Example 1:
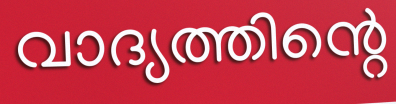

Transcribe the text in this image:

വാദ്യത്തിന്റെ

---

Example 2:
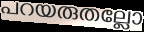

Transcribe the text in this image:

പറയരുതല്ലോ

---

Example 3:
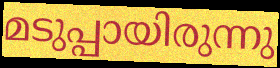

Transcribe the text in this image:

മടുപ്പായിരുന്നു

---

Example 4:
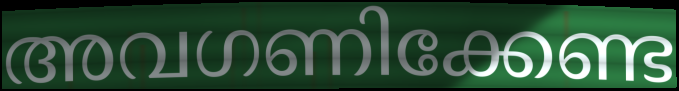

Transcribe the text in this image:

അവഗണിക്കേണ്ട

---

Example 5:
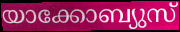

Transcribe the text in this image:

യാക്കോബ്യുസ്